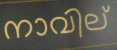
നാവില്